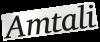
Amtali